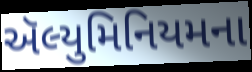
ઍલ્યુમિનિયમના